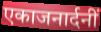
एकाजनार्दनीं